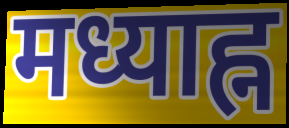
मध्याह्न